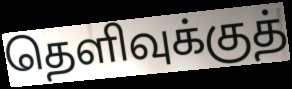
தெளிவுக்குத்